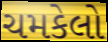
ચમકેલો